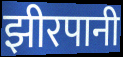
झीरपानी